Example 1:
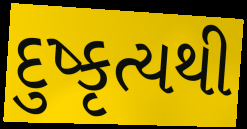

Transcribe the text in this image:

દુષ્કૃત્યથી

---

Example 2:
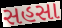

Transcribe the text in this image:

સહસા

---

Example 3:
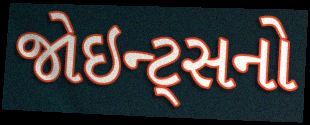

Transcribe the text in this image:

જોઇન્ટ્સનો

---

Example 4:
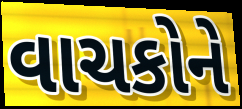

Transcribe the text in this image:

વાચકોને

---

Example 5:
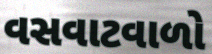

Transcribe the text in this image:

વસવાટવાળો